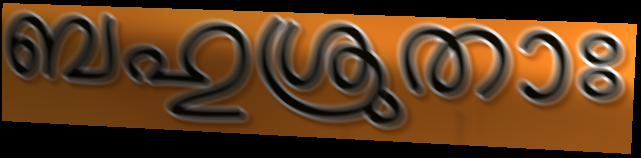
ബഹുശ്രുതാഃ